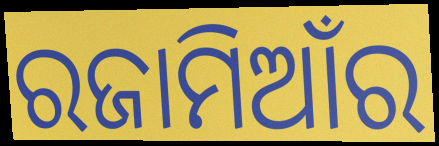
ରଜାମିଆଁର